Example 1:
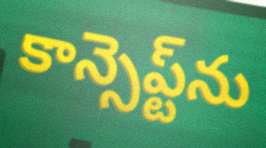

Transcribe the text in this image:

కాన్సెప్ట్‌ను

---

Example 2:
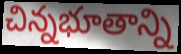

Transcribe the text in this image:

చిన్నభూతాన్ని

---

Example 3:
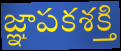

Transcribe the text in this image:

జ్ఞాపకశక్తి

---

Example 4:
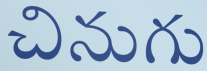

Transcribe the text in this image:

చినుగు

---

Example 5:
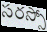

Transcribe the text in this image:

సరస్సో